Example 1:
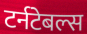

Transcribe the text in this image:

टर्नटेबल्स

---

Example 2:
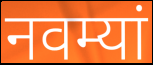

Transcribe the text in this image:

नवम्यां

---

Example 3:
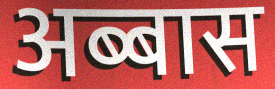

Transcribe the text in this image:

अब्बास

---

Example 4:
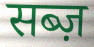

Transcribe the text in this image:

सब्ज़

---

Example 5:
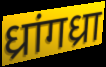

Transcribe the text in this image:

ध्रांगध्रा